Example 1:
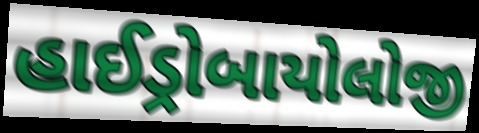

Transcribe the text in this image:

હાઈડ્રોબાયોલોજી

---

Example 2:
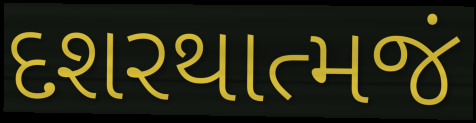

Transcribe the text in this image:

દશરથાત્મજં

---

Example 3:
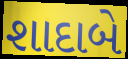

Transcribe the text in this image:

શાદાબે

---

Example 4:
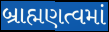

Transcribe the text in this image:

બ્રાહ્મણત્વમાં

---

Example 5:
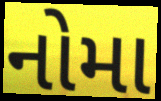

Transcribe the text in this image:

નોમા